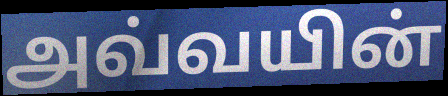
அவ்வயின்